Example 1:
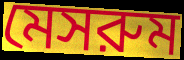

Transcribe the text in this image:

মেসরুম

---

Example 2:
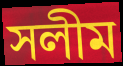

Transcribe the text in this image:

সলীম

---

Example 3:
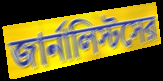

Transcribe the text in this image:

জার্নালিস্টসের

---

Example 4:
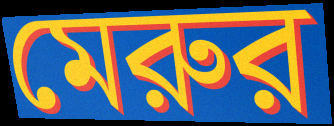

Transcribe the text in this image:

মেরুর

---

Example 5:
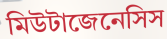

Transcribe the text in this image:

মিউটাজেনেসিস